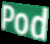
Pod